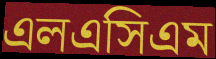
এলএসিএম